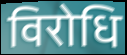
विरोधि